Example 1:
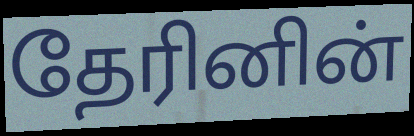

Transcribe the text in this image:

தேரினின்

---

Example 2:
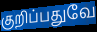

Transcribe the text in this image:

குறிப்பதுவே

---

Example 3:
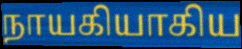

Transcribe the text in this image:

நாயகியாகிய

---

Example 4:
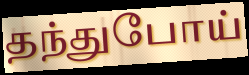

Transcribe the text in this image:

தந்துபோய்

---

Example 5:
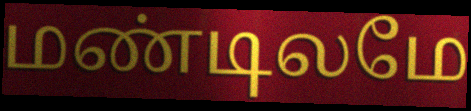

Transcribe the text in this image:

மண்டிலமே